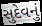
સુદેવનું